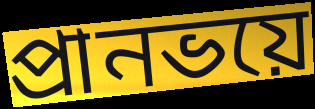
প্রানভয়ে